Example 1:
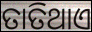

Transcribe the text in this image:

ତାତିଥାଏ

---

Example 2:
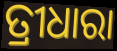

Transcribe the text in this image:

ତ୍ରୀଧାରା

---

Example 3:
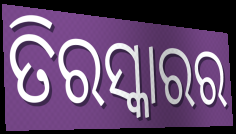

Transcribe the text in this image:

ତିରସ୍କାରର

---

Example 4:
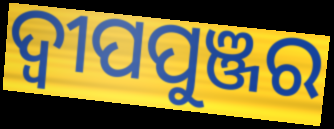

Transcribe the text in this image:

ଦ୍ଵୀପପୁଞ୍ଜର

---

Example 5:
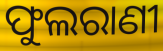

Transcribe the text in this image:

ଫୁଲରାଣୀ